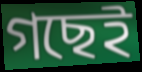
গছেই